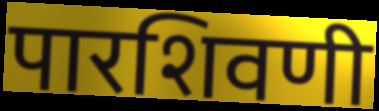
पारशिवणी